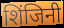
शिंजिनी